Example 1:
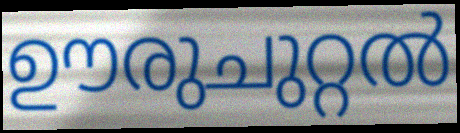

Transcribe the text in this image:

ഊരുചുറ്റൽ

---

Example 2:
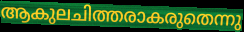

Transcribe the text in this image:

ആകുലചിത്തരാകരുതെന്നു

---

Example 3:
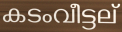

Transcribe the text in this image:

കടംവീട്ടല്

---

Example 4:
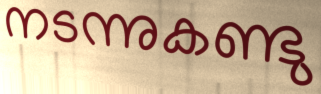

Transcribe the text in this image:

നടന്നുകണ്ടു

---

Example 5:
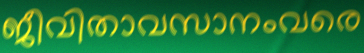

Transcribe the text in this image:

ജീവിതാവസാനംവരെ